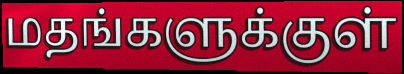
மதங்களுக்குள்